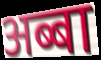
अब्बा